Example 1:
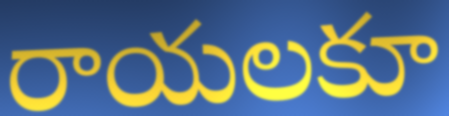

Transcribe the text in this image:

రాయలకూ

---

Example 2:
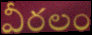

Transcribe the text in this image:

వీరలం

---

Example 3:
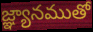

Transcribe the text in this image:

జ్ఞ్యానముతో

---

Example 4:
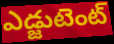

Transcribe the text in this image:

ఎడ్జుటెంట్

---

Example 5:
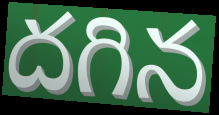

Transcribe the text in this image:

దగిన